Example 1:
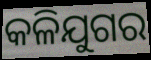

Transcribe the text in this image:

କଳିଯୁଗର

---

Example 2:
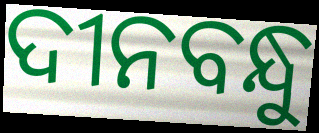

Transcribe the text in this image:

ଦୀନବନ୍ଧୁ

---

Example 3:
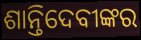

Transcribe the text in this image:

ଶାନ୍ତିଦେବୀଙ୍କର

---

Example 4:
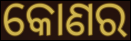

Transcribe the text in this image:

କୋଣର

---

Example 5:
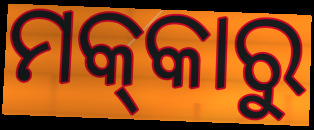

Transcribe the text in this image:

ମକ୍‌କାରୁ